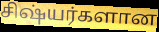
சிஷ்யர்களான